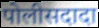
पोलीसदादा